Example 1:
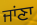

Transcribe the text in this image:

ਜਾਂਣਾ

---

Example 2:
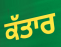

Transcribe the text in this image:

ਕੱਤਾਰ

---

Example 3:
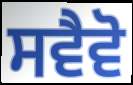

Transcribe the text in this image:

ਸਵੈਵੋ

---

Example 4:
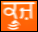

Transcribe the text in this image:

ਕ੍ਰੂਜ਼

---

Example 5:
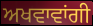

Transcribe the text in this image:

ਅਖਵਾਵਾਂਗੀ